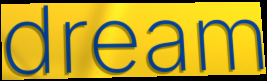
dream